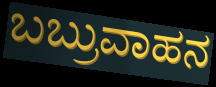
ಬಬ್ರುವಾಹನ